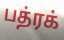
பத்ரக்